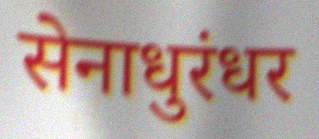
सेनाधुरंधर